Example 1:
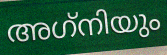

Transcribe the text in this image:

അഗ്‌നിയും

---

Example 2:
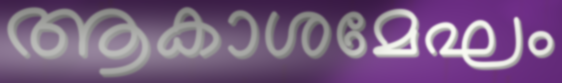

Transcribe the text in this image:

ആകാശമേഘം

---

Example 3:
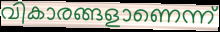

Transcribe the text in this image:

വികാരങ്ങളാണെന്ന്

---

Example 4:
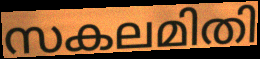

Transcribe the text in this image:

സകലമിതി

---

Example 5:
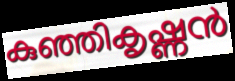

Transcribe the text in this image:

കുഞ്ഞികൃഷ്ണൻ